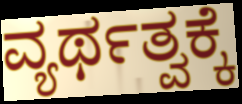
ವ್ಯರ್ಥತ್ವಕ್ಕೆ